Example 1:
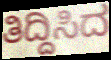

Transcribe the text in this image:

ತಿದ್ದಿಸಿದ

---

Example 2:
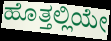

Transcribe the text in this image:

ಹೊತ್ತಲ್ಲಿಯೇ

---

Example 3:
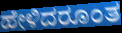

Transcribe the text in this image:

ಹೇಳಿದರೂಂತ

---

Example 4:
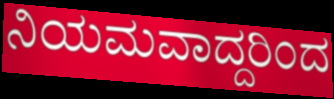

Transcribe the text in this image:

ನಿಯಮವಾದ್ದರಿಂದ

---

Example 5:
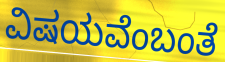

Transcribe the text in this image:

ವಿಷಯವೆಂಬಂತೆ